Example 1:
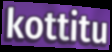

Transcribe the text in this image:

kottitu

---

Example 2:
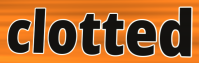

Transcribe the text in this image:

clotted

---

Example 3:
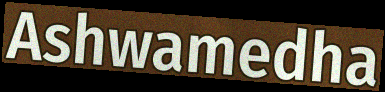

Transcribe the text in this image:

Ashwamedha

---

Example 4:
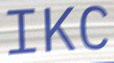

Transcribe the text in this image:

IKC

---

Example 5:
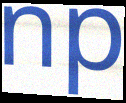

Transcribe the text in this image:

np